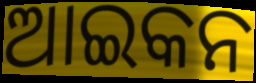
ଆଇକନ